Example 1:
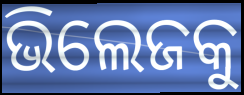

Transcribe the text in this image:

ଭିଲେଜକୁ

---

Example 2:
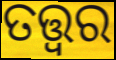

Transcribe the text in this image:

ତତ୍ତ୍ବର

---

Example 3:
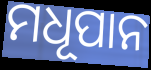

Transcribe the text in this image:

ମଧୂପାନ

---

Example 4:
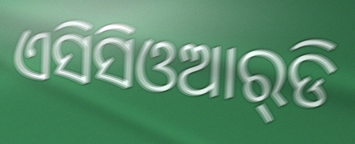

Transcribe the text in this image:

ଏସିସିଓଆର୍‌ଡି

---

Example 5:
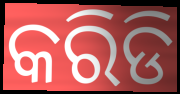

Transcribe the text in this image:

କରିଡି